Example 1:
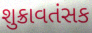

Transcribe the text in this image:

શુક્રાવતંસક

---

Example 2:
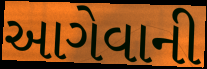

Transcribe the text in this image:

આગેવાની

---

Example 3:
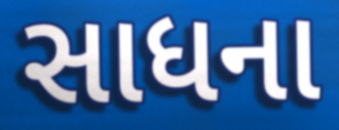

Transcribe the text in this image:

સાધના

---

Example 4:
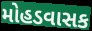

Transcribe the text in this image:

મોહડવાસક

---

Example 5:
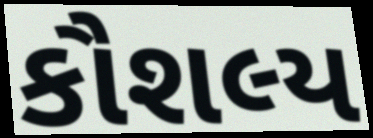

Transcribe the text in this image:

કૌશલ્ય